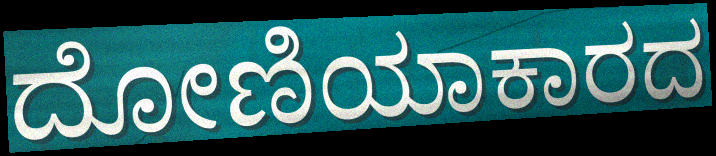
ದೋಣಿಯಾಕಾರದ